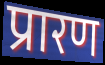
प्रारण